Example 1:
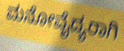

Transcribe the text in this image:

ಮನೋವೈದ್ಯರಾಗಿ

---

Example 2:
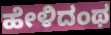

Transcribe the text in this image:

ಹೇಳಿದಂಥ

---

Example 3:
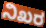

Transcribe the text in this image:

ನಿಖರ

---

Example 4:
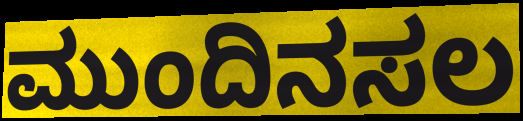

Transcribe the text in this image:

ಮುಂದಿನಸಲ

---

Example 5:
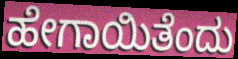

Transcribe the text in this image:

ಹೇಗಾಯಿತೆಂದು